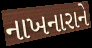
નાખનારાને